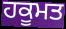
ਹਕੂਮਤ